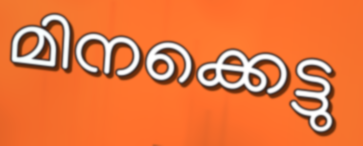
മിനക്കെട്ടു